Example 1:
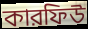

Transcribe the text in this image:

কারফিউ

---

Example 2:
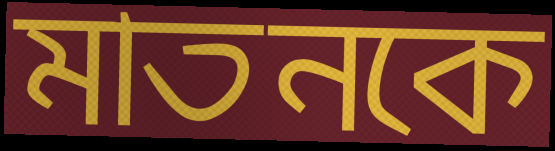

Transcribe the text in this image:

মাতনকে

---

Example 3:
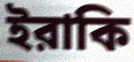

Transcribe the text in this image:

ইরাকি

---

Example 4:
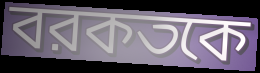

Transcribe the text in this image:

বরকতকে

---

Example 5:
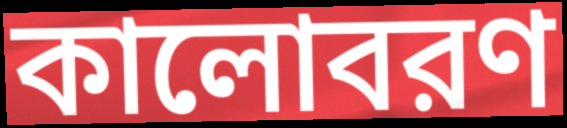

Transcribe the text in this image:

কালোবরণ